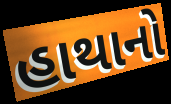
હાથાનો